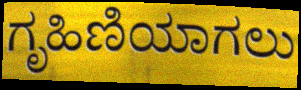
ಗೃಹಿಣಿಯಾಗಲು